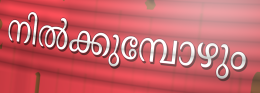
നിൽക്കുമ്പോഴും